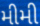
મીમી